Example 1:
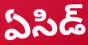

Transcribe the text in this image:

ఏసిడ్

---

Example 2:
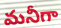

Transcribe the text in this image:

మనీగా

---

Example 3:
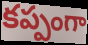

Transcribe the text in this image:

కప్పంగా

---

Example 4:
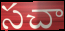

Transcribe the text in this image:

సచా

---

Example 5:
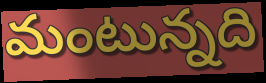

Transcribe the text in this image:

మంటున్నది